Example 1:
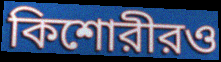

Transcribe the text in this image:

কিশোরীরও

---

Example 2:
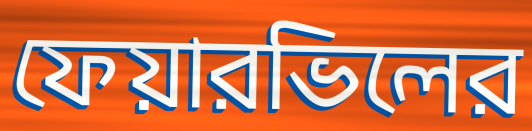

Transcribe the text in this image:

ফেয়ারভিলের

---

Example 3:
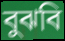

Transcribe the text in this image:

বুঝবি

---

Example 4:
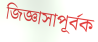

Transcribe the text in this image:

জিজ্ঞাসাপূর্বক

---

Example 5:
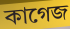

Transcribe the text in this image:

কাগেজ